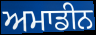
ਅਮਾਡੀਨ